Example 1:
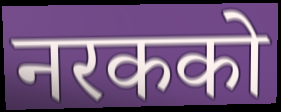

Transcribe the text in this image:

नरकको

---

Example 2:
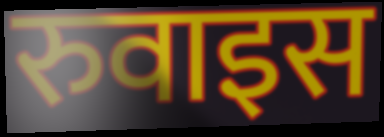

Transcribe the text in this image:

रुवाइस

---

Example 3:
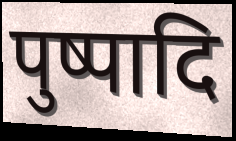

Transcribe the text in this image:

पुष्पादि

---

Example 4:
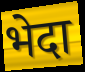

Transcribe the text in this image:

भेदा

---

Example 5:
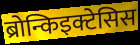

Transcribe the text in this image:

ब्रोन्किइक्टेसिस